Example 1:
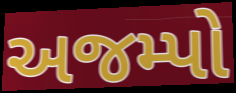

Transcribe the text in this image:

અજમ્પો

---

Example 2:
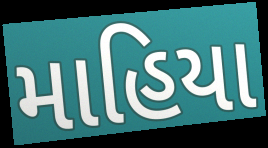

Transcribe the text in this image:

માહિયા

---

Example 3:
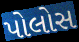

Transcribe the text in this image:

પોલોસ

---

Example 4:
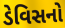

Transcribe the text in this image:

ડેવિસનો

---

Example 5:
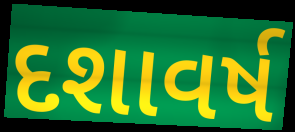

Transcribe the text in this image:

દશાવર્ષ